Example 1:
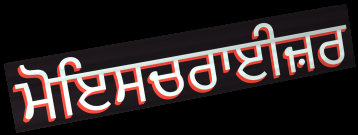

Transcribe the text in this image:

ਮੋਇਸਚਰਾਈਜ਼ਰ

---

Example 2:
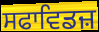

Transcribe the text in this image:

ਸਫਾਵਿਡਜ਼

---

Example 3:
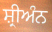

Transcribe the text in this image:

ਸ਼੍ਰੀਅੰਨ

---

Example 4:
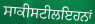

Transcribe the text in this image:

ਸਾਕੀਸਟੀਲਇਹਨਾਂ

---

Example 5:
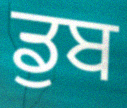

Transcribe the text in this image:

ਡੁਬ